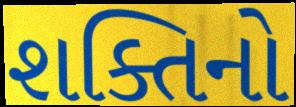
શક્તિનો